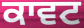
ਕਾਵਟ